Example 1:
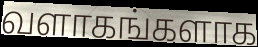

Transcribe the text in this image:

வளாகங்களாக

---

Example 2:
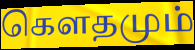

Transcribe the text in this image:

கெளதமும்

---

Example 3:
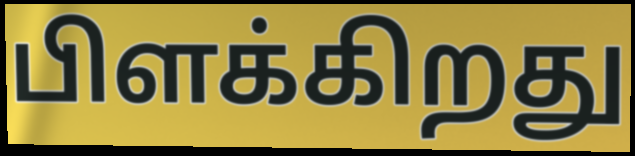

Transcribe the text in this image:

பிளக்கிறது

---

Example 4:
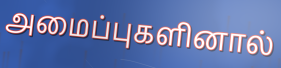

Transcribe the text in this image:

அமைப்புகளினால்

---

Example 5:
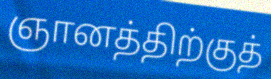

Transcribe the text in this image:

ஞானத்திற்குத்